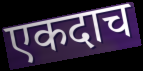
एकदाच